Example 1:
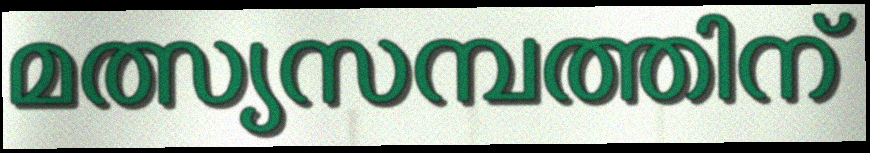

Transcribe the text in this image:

മത്സ്യസമ്പത്തിന്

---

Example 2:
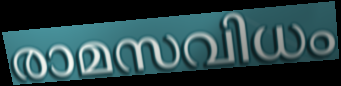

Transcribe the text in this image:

രാമസവിധം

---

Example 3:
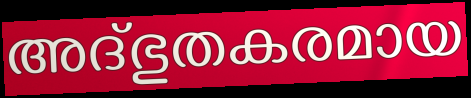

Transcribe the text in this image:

അദ്ഭുതകരമായ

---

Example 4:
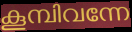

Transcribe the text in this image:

കൂമ്പിവന്നേ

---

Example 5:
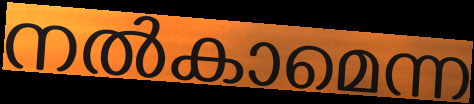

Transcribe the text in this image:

നൽകാമെന്ന